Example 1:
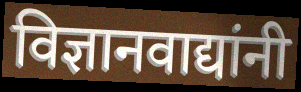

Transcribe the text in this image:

विज्ञानवाद्यांनी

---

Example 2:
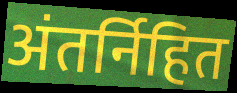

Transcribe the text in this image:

अंतर्निहित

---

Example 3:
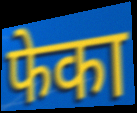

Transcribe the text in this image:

फेका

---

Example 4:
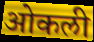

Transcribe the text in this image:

ओकली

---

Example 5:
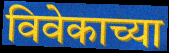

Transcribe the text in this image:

विवेकाच्या